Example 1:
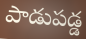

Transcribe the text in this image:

పాడుపడ్డ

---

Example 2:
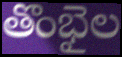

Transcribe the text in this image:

తొంభైల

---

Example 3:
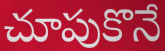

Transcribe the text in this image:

చూపుకొనే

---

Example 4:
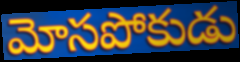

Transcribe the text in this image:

మోసపోకుడు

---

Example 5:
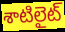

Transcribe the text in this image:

శాటిలైట్